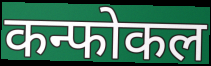
कन्फोकल